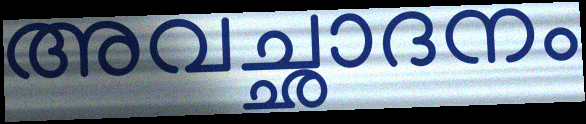
അവച്ഛാദനം